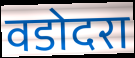
वडोदरा